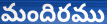
మందిరము